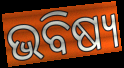
ଭବିଷ୍ଯ